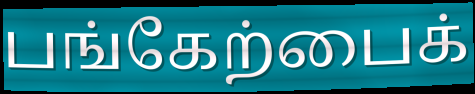
பங்கேற்பைக்